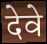
देवे